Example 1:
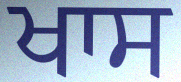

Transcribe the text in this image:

ਖਾਸ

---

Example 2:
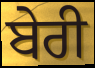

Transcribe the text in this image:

ਬੇਰੀ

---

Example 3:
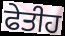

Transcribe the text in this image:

ਫੇਤੀਹ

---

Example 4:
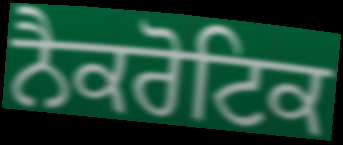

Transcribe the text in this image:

ਨੈਕਰੋਟਿਕ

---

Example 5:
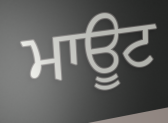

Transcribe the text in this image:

ਮਾਊਟ